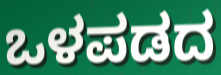
ಒಳಪಡದ